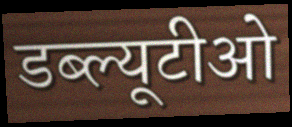
डब्ल्यूटीओ